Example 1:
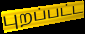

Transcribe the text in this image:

புறப்பட்ட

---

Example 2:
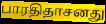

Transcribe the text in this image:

பாரதிதாசனது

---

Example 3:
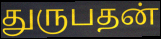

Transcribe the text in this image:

துருபதன்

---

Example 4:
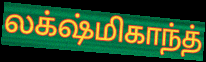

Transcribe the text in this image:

லக்‌ஷ்மிகாந்த்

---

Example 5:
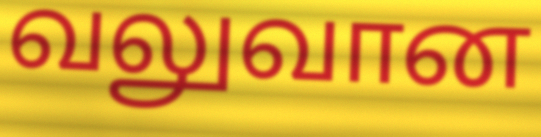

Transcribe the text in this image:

வலுவான